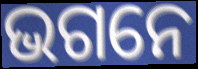
ଭଗନେ